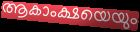
ആകാംക്ഷയെയും